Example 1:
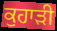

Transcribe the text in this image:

ਕੁਹਾੜੀ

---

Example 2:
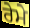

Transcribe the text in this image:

ਰੇਮੇ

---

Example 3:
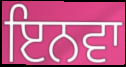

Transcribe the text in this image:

ਇਨਵਾ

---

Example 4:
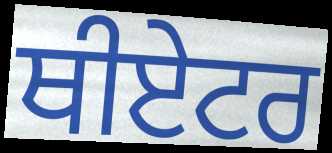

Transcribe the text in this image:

ਥੀਏਟਰ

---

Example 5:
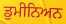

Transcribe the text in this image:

ਡੁਮੀਨਿਅਨ